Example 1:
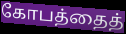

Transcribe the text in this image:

கோபத்தைத்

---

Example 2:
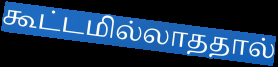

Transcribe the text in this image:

கூட்டமில்லாததால்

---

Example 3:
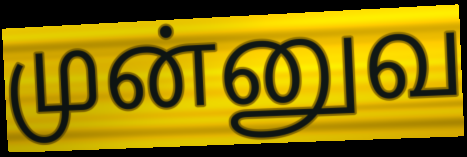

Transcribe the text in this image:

முன்னுவ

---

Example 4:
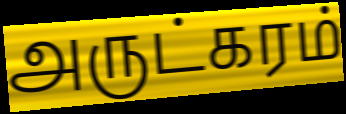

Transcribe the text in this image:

அருட்கரம்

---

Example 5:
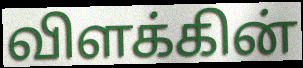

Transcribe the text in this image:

விளக்கின்